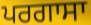
ਪਰਗਾਸਾ